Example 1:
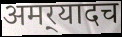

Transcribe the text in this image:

अमर्यादच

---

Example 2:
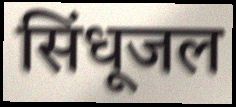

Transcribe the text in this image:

सिंधूजल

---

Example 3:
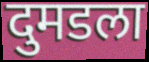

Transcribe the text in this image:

दुमडला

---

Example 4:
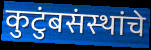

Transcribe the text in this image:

कुटुंबसंस्थांचे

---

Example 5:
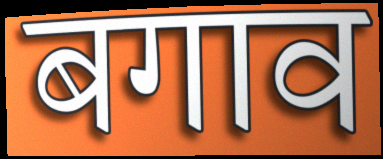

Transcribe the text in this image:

बगाव